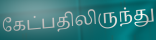
கேட்பதிலிருந்து